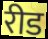
रीड